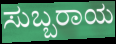
ಸುಬ್ಬರಾಯ